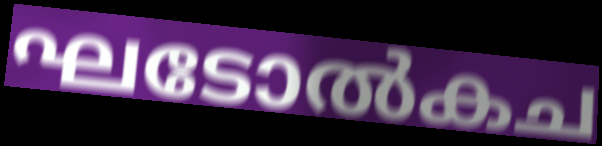
ഘടോൽകച